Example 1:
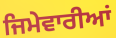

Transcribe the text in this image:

ਜਿਮੇਵਾਰੀਆਂ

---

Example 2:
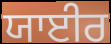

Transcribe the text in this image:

ਯਾਈਰ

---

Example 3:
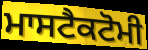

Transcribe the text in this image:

ਮਾਸਟੈਕਟੋਮੀ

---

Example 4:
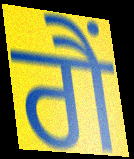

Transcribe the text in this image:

ਗੈਂ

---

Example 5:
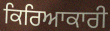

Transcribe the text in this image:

ਕਿਰਿਆਕਾਰੀ